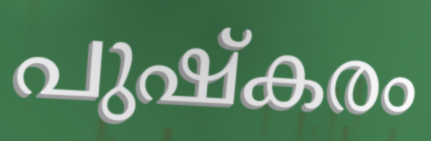
പുഷ്കരം